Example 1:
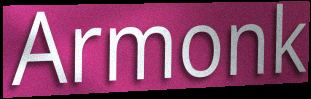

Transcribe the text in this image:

Armonk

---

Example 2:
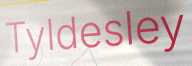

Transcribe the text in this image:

Tyldesley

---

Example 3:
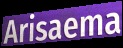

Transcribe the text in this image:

Arisaema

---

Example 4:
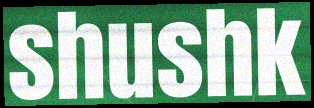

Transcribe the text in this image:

shushk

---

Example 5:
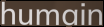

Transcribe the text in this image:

humain